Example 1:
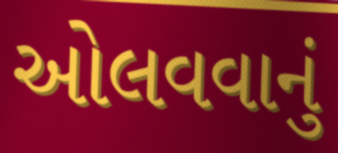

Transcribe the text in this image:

ઓલવવાનું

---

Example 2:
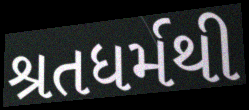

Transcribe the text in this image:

શ્રતધર્મથી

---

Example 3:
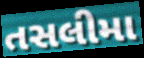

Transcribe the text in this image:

તસલીમા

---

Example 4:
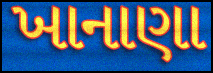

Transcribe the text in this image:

ખાનાણા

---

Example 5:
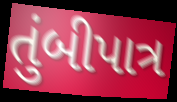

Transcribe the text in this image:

તુંબીપાત્ર